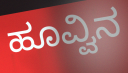
ಹೂವ್ವಿನ